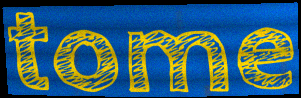
tome